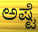
ಅಷ್ಟೆ